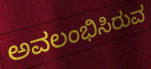
ಅವಲಂಭಿಸಿರುವ